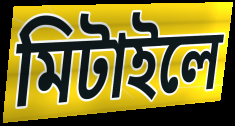
মিটাইলে